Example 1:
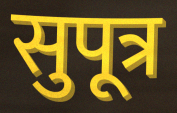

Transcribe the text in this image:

सुपूत्र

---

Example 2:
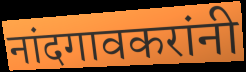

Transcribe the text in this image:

नांदगावकरांनी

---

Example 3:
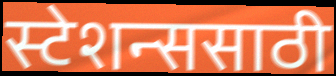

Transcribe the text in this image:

स्टेशन्ससाठी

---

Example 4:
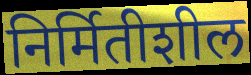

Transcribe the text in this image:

निर्मितीशील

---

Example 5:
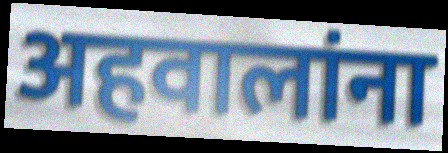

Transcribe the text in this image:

अहवालांना